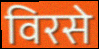
विरसे